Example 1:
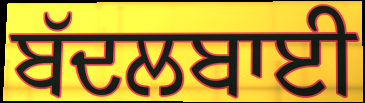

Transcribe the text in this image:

ਬੱਦਲਬਾਈ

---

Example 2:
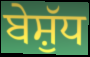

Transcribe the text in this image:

ਬੇਸ਼ੁੱਧ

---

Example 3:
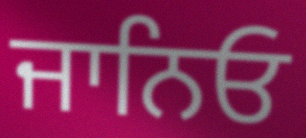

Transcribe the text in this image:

ਜਾਨਿਓ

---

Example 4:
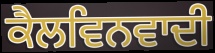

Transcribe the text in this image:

ਕੈਲਵਿਨਵਾਦੀ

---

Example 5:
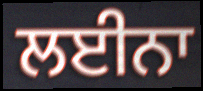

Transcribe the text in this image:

ਲਈਨਾ